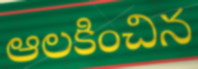
ఆలకించిన